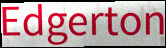
Edgerton